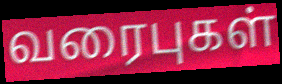
வரைபுகள்